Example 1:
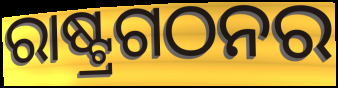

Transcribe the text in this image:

ରାଷ୍ଟ୍ରଗଠନର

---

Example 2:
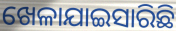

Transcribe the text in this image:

ଖେଳାଯାଇସାରିଛି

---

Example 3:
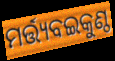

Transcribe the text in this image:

ମର୍ତ୍ତ୍ୟବଇକୁଣ୍ଠ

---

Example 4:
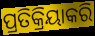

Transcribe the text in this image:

ପ୍ରତିକ୍ରିୟାକରି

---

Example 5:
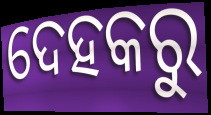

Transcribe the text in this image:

ଦେହକରୁ